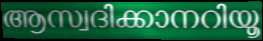
ആസ്വദിക്കാനറിയൂ